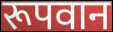
रूपवान